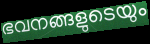
ഭവനങ്ങളുടെയും